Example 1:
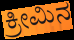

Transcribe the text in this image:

ಕ್ರೀಮಿನ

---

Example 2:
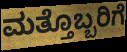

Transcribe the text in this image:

ಮತ್ತೊಬ್ಬರಿಗೆ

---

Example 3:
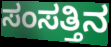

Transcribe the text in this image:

ಸಂಸತ್ತಿನ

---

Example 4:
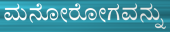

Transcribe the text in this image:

ಮನೋರೋಗವನ್ನು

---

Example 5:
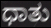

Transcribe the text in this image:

ಧಾತು